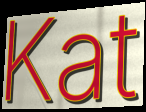
Kat